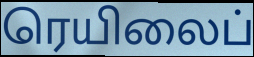
ரெயிலைப்